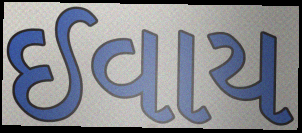
ઈવાય